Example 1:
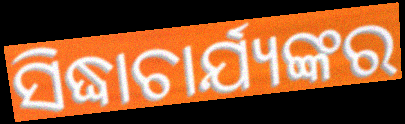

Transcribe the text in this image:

ସିଦ୍ଧାଚାର୍ଯ୍ୟଙ୍କର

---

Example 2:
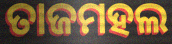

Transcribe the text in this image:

ତାଜମହଲ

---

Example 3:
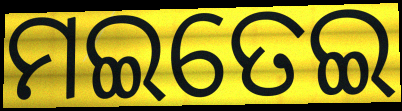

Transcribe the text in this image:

ମଇତେଇ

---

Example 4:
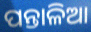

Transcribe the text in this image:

ପନ୍ତାଳିଆ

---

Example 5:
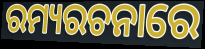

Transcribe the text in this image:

ରମ୍ୟରଚନାରେ